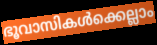
ഭൂവാസികൾക്കെല്ലാം